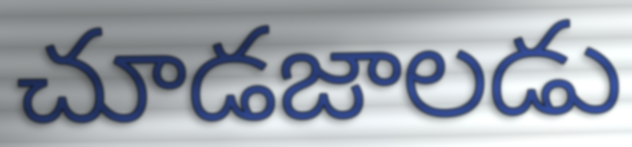
చూడజాలడు